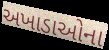
અખાડાઓના